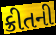
ક્રીતની